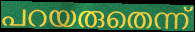
പറയരുതെന്ന്